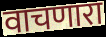
वाचणारा